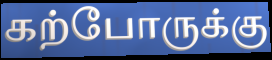
கற்போருக்கு